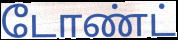
டோண்ட்